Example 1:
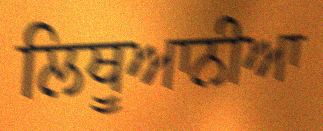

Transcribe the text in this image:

ਲਿਥੂਆਨੀਆ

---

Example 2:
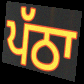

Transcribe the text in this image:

ਪੱਠਾ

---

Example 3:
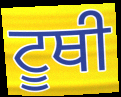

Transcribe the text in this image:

ਟੂਥੀ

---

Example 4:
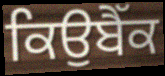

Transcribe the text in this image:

ਕਿਉਬੈੱਕ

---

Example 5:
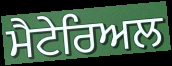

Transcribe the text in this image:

ਮੈਟੇਰਿਅਲ